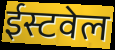
ईस्टवेल